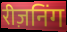
रीज़निंग